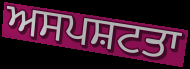
ਅਸਪਸ਼ਟਤਾ